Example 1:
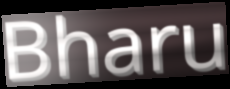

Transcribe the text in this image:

Bharu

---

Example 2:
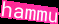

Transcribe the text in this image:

hammu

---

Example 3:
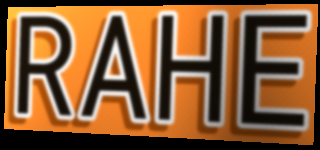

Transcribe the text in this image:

RAHE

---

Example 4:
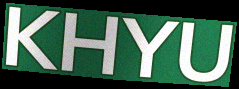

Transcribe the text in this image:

KHYU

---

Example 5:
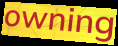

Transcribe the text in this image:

owning